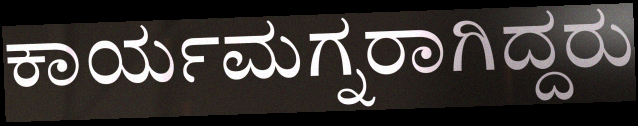
ಕಾರ್ಯಮಗ್ನರಾಗಿದ್ದರು